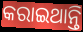
କରାଇଥାନ୍ତି